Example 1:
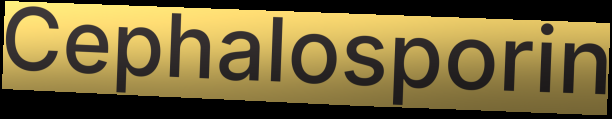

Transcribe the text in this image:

Cephalosporin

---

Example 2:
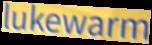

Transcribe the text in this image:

lukewarm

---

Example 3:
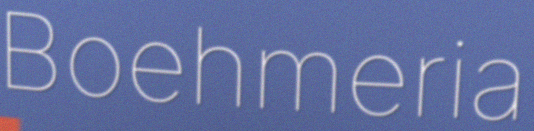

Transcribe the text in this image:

Boehmeria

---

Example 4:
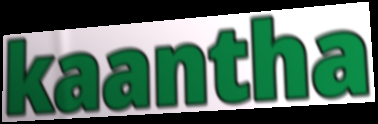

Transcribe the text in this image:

kaantha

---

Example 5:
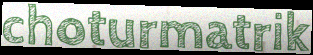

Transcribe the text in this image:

choturmatrik